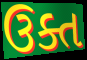
ઉક્ત